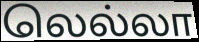
லெல்லா